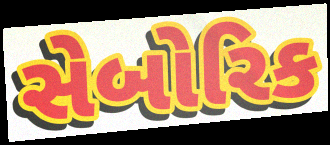
સેબોરિક